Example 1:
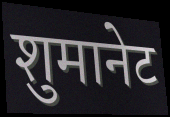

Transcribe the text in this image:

शुमानेट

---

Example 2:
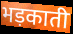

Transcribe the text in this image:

भड़काती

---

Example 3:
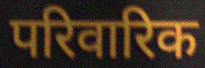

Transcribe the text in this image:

परिवारिक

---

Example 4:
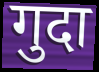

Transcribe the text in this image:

गुदा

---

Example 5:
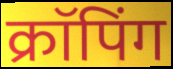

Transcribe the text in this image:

क्रॉपिंग